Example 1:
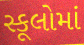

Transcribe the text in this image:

સ્કૂલોમાં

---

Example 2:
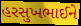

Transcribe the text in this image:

હરસુખભાઈને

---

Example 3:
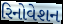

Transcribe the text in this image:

રિનોવેશન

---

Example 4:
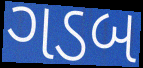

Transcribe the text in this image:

ગડબ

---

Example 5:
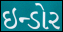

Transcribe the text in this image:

ઇન્ડોર